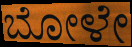
ಬೋಳೇ